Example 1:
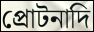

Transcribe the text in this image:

প্রোটনাদি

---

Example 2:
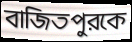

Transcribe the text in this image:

বাজিতপুরকে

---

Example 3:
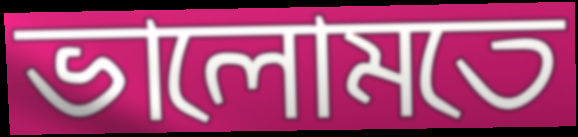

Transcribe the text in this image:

ভালোমতে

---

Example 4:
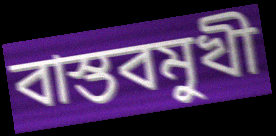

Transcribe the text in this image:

বাস্তবমুখী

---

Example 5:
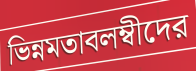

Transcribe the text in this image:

ভিন্নমতাবলম্বীদের